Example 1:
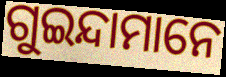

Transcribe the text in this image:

ଗୁଇନ୍ଦାମାନେ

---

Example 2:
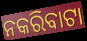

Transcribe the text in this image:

ନକରିବାଟା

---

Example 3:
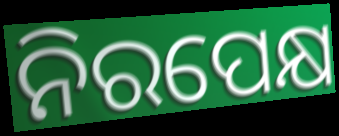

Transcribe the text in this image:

ନିରପେକ୍ଷ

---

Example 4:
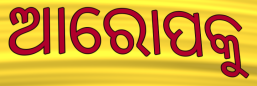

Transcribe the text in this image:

ଆରୋପକୁ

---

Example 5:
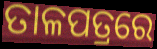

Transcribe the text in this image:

ତାଳପତ୍ରରେ